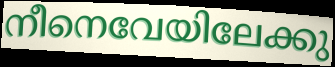
നീനെവേയിലേക്കു